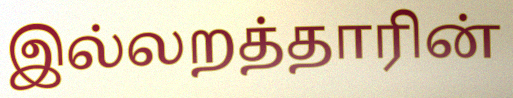
இல்லறத்தாரின்